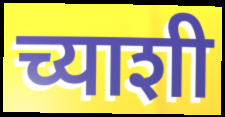
च्याशी